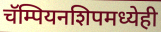
चॅम्पियनशिपमध्येही